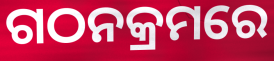
ଗଠନକ୍ରମରେ